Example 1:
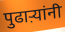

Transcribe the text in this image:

पुढाऱ्‍यांनी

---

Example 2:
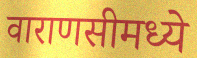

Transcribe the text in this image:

वाराणसीमध्ये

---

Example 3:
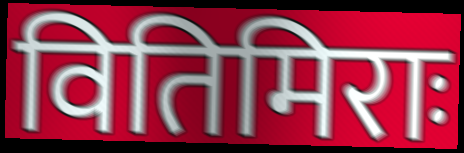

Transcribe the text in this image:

वितिमिराः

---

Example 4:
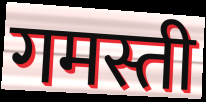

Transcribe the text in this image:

गमस्ती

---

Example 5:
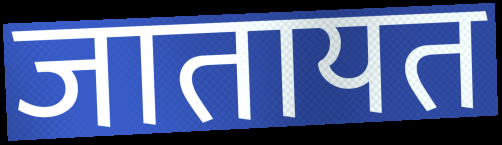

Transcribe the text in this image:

जातायत